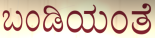
ಬಂಡಿಯಂತೆ